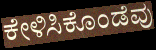
ಕೇಳಿಸಿಕೊಂಡೆವು